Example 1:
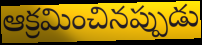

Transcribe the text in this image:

ఆక్రమించినప్పుడు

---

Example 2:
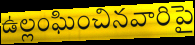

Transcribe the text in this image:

ఉల్లంఘించినవారిపై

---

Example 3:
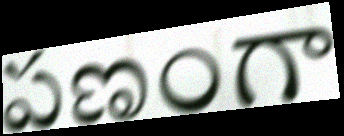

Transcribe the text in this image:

పణంగా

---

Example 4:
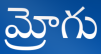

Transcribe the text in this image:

మ్రోగు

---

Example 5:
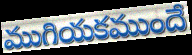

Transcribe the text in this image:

ముగియకముందే